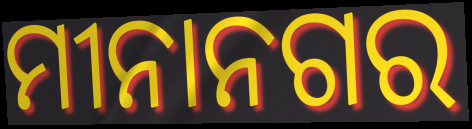
ମୀନାନଗର